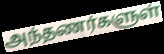
அந்தணர்களுள்